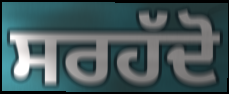
ਸਰਹੱਦੋ